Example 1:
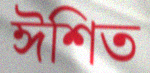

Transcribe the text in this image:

ঈশিত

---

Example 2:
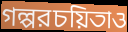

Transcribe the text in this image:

গল্পরচয়িতাও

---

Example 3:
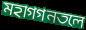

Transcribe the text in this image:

মহাগগনতলে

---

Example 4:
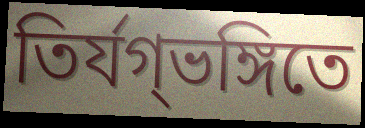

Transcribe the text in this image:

তির্যগ্ভঙ্গিতে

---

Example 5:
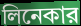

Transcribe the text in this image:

লিনেকার